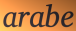
arabe